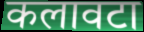
कलावटा